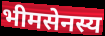
भीमसेनस्य